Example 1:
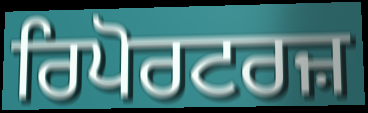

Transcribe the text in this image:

ਰਿਪੋਰਟਰਜ਼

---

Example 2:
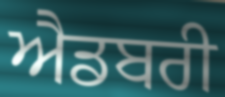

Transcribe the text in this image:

ਐਡਬਰੀ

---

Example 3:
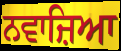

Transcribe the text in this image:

ਨਵਾਜ਼ਿਆ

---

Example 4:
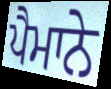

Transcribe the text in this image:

ਪੈਮਾਨੇ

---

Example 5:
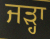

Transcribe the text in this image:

ਜੜ੍ਹਾ